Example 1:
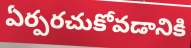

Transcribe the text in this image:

ఏర్పరచుకోవడానికి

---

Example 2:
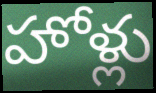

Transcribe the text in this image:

హోళ్లు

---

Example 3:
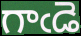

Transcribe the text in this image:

గాఁడె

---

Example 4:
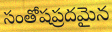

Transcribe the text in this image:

సంతోషప్రదమైన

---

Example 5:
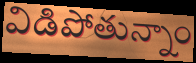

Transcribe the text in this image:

విడిపోతున్నాం